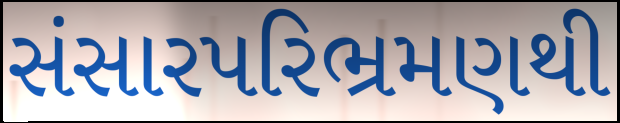
સંસારપરિભ્રમણથી